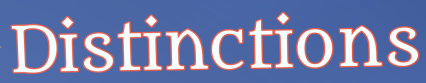
Distinctions